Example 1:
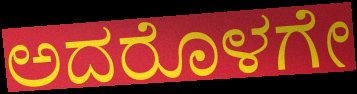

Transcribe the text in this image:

ಅದರೊಳಗೇ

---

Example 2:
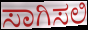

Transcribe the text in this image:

ಸಾಗಿಸಲಿ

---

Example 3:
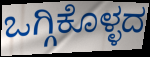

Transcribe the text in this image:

ಒಗ್ಗಿಕೊಳ್ಳದ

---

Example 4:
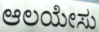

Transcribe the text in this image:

ಆಲಯೇಸು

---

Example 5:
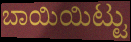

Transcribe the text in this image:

ಬಾಯಿಯಿಟ್ಟು